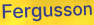
Fergusson